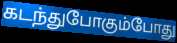
கடந்துபோகும்போது